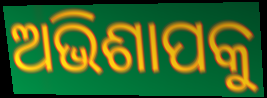
ଅଭିଶାପକୁ